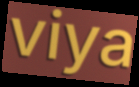
viya